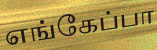
எங்கேப்பா